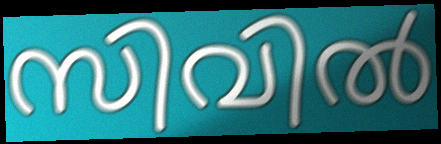
സിവിൽ